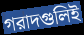
গরাদগুলিই